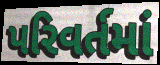
પરિવર્તમાં